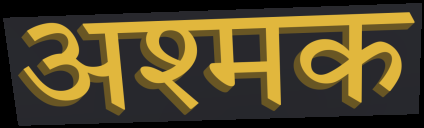
अश्मक